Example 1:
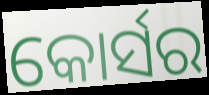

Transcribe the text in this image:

କୋର୍ସର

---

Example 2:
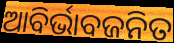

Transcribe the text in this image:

ଆବିର୍ଭାବଜନିତ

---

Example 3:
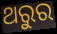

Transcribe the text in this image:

ଥରୁର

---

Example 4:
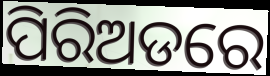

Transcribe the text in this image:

ପିରିଅଡରେ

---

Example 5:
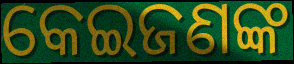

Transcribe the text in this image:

କେଇଜଣଙ୍କ